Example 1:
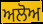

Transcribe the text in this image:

ਅਲੋਅ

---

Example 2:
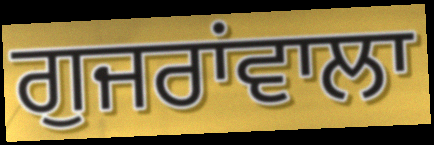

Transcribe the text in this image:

ਗੁਜਰਾਂਵਾਲਾ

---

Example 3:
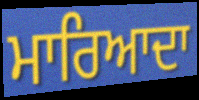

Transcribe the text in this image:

ਮਾਰਿਆਦਾ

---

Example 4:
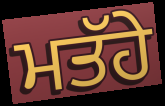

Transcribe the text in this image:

ਮਤੱਹੇ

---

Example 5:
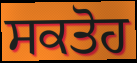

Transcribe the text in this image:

ਸਕਤੋਹ